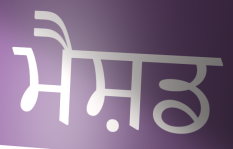
ਮੈਸ਼ਡ